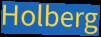
Holberg